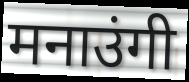
मनाउंगी